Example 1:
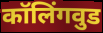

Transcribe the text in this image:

कॉलिंगवुड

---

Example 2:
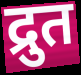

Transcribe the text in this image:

द्रुत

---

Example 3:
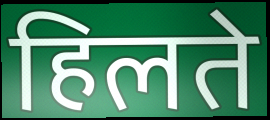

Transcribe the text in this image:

हिलते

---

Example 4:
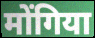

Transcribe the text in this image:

मोंगिया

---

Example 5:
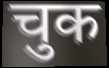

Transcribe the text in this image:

चुक